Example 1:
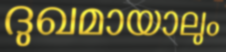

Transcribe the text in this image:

ദുഖമായാലും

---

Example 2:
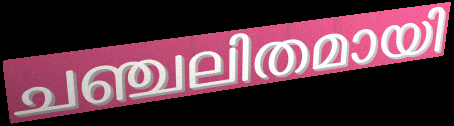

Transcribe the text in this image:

ചഞ്ചലിതമായി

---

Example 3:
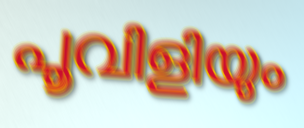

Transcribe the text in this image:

പൂവിളിയും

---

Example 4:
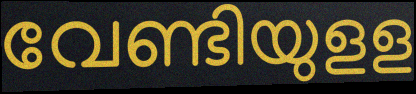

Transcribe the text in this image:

വേണ്ടിയുളള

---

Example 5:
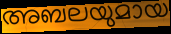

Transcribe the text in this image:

അബലയുമായ